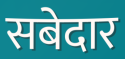
सबेदार